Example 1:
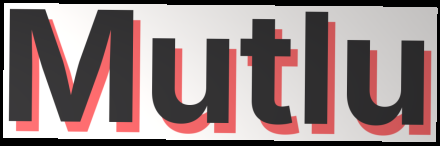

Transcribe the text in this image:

Mutlu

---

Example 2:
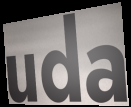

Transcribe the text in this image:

uda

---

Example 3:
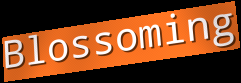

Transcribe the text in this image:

Blossoming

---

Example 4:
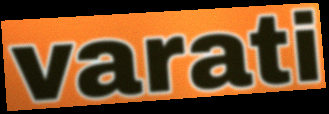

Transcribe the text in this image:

varati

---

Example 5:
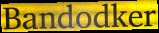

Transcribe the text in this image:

Bandodker